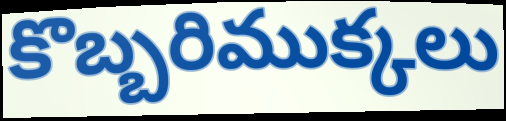
కొబ్బరిముక్కలు